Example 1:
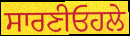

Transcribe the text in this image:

ਸਾਰਣੀਓਹਲੇ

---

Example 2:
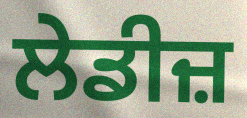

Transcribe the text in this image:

ਲੇਡੀਜ਼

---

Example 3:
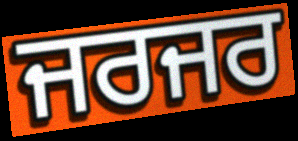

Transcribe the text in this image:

ਜਰਜਰ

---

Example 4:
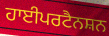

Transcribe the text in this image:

ਹਾਈਪਰਟੈਨਸ਼ਨ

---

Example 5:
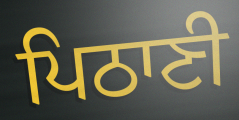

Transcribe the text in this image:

ਪਿਠਾਣੀ